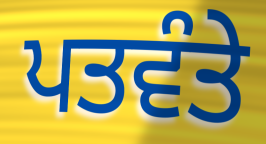
ਪਤਵੰਤੇ